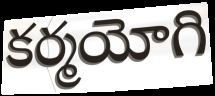
కర్మయోగి